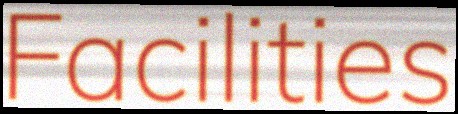
Facilities